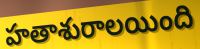
హతాశురాలయింది